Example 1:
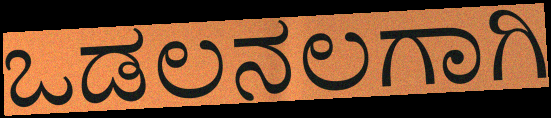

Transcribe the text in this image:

ಒಡಲನಲಗಾಗಿ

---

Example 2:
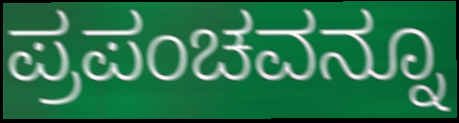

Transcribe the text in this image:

ಪ್ರಪಂಚವನ್ನೂ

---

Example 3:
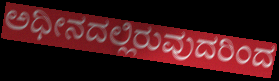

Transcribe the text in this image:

ಅಧೀನದಲ್ಲಿರುವುದರಿಂದ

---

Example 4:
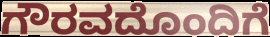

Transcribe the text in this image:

ಗೌರವದೊಂದಿಗೆ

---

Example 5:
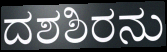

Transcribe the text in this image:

ದಶಶಿರನು